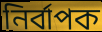
নির্বাপক